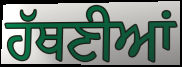
ਹੱਥਣੀਆਂ